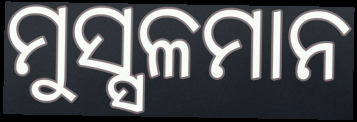
ମୁସ୍ସଳମାନ